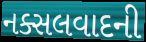
નક્સલવાદની